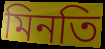
মিনতি